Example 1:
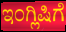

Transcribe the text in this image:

ಇಂಗ್ಲಿಷಿಗೆ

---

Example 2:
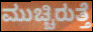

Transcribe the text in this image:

ಮುಚ್ಚಿರುತ್ತೆ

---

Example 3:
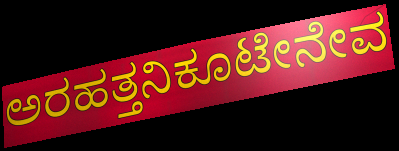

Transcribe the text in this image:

ಅರಹತ್ತನಿಕೂಟೇನೇವ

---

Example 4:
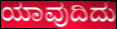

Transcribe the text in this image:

ಯಾವುದಿದು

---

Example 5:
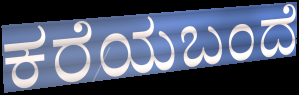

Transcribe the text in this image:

ಕರೆಯಬಂದೆ